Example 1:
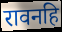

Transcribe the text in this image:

रावनहि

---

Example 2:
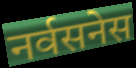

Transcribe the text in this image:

नर्वसनेस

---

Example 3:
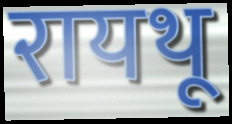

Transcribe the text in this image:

रायथू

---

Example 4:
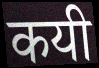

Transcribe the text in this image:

कयी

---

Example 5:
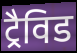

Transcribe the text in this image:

ट्रैविड